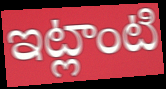
ఇట్లాంటి